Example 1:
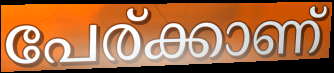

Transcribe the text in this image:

പേര്ക്കാണ്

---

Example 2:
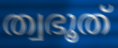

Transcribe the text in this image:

ത്വഭൂത്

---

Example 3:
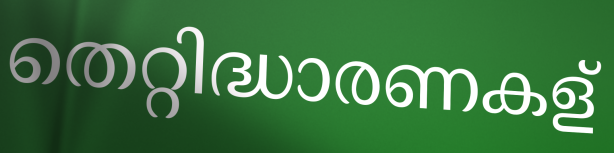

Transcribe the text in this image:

തെറ്റിദ്ധാരണകള്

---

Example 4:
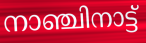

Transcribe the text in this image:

നാഞ്ചിനാട്ട്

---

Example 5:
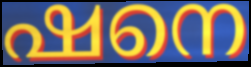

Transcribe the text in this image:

ഷനെ